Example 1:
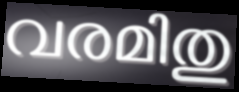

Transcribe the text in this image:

വരമിതു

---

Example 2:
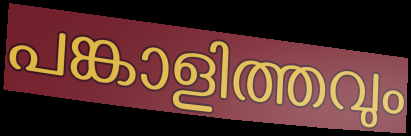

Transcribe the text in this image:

പങ്കാളിത്തവും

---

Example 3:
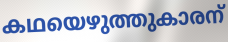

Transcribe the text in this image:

കഥയെഴുത്തുകാരന്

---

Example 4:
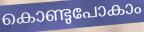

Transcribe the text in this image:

കൊണ്ടുപോകാം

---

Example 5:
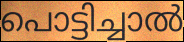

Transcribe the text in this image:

പൊട്ടിച്ചാൽ